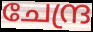
ചേന്ദ്ര